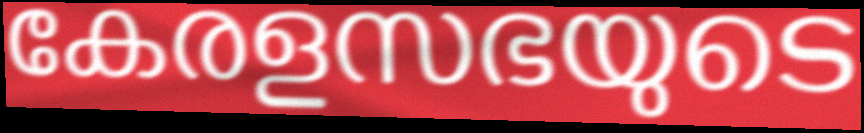
കേരളസഭയുടെ